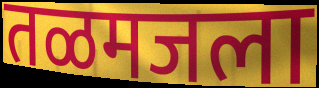
तळमजला